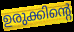
ഉരുക്കിന്റെ